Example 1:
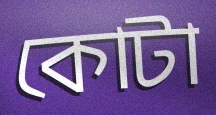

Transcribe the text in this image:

কোটা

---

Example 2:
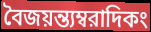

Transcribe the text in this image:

বৈজয়ন্ত্যম্বরাদিকং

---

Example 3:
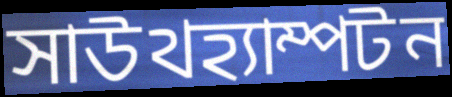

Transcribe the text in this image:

সাউথহ্যাম্পটন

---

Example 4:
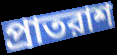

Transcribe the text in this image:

প্রাতরাশ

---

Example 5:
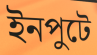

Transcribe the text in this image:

ইনপুটে